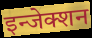
इन्जेक्शन